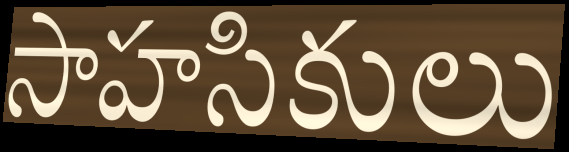
సాహసికులు